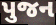
પુજન